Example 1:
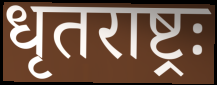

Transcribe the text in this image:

धृतराष्ट्रः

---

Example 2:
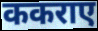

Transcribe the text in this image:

ककराए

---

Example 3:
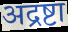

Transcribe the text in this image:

अद्रष्टा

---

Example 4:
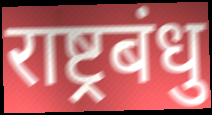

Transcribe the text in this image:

राष्ट्रबंधु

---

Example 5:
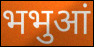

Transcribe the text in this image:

भभुआं